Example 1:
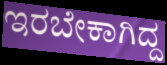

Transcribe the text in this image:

ಇರಬೇಕಾಗಿದ್ದ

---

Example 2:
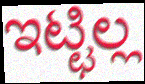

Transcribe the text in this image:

ಇಟ್ಟಿಲ್ಲ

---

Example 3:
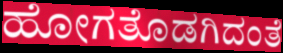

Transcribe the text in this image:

ಹೋಗತೊಡಗಿದಂತೆ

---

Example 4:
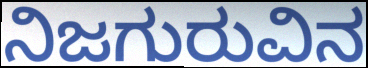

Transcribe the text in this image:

ನಿಜಗುರುವಿನ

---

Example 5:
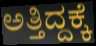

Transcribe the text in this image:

ಅತ್ತಿದ್ದಕ್ಕೆ